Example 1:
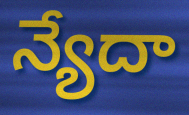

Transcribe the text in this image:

న్యేదా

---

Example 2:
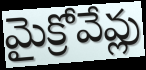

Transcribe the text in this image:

మైక్రోవేవ్లు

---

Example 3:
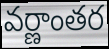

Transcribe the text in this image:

వర్ణాంతర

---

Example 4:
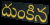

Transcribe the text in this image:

దుంకిన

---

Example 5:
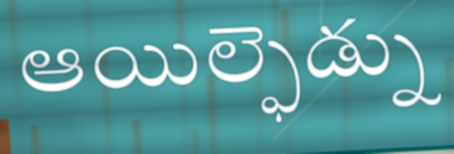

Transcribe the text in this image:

ఆయిల్ఫెడ్ను